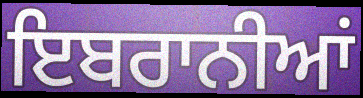
ਇਬਰਾਨੀਆਂ